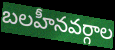
బలహీనవర్గాల